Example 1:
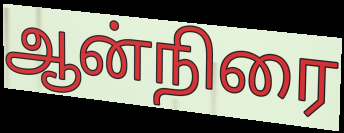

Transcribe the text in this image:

ஆன்நிரை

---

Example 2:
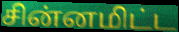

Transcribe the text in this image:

சின்னமிட்ட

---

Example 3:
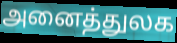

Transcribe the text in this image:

அனைத்துலக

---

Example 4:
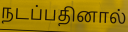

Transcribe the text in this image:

நடப்பதினால்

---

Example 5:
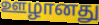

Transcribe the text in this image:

ஊழானது